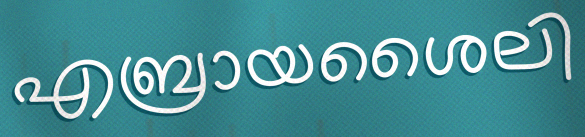
എബ്രായശൈലി